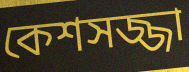
কেশসজ্জা